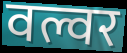
वल्वर